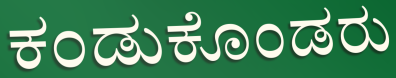
ಕಂಡುಕೊಂಡರು